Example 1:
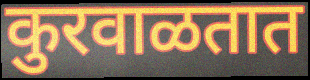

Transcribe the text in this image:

कुरवाळतात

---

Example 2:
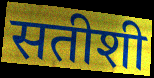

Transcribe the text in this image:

सतीशी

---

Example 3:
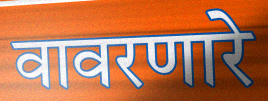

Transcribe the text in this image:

वावरणारे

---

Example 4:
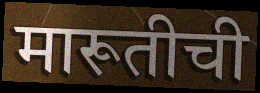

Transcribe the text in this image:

मारूतीची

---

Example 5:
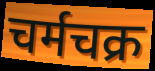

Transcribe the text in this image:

चर्मचक्र